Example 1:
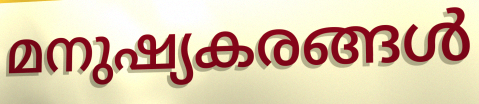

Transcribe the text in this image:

മനുഷ്യകരങ്ങൾ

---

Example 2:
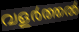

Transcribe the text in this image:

വളർത്തൽ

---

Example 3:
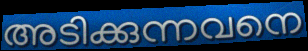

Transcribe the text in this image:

അടിക്കുന്നവനെ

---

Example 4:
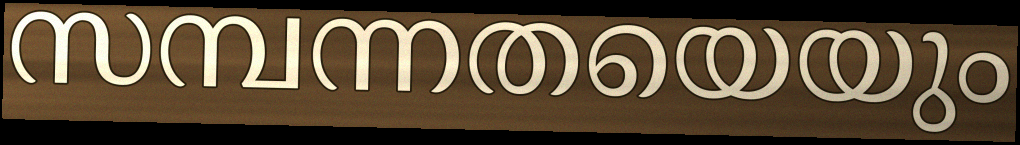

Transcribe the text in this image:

സമ്പന്നതയെയും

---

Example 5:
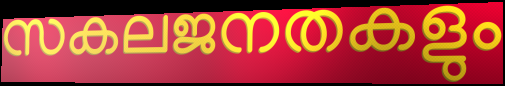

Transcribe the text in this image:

സകലജനതകളും